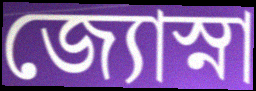
জ্যোস্না